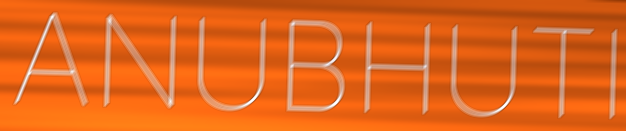
ANUBHUTI